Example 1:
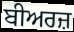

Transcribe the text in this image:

ਬੀਅਰਜ਼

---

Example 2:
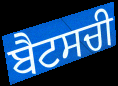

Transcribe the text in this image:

ਬੈਟਸਚੀ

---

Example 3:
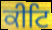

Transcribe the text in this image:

ਕੀਟਿ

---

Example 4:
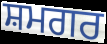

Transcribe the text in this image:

ਸ਼ਮਗਰ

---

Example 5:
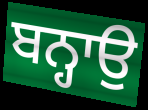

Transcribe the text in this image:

ਬਨ੍ਹਾਉ